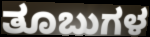
ತೂಬುಗಳ